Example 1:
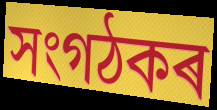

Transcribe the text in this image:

সংগঠকৰ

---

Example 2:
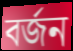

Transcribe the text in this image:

বৰ্জন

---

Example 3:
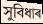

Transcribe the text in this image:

সুবিধাৰ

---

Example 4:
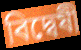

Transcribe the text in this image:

বিদ্বেষী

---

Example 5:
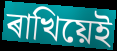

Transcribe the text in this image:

ৰাখিয়েই